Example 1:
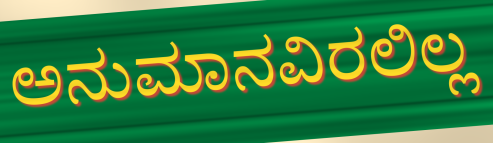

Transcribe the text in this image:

ಅನುಮಾನವಿರಲಿಲ್ಲ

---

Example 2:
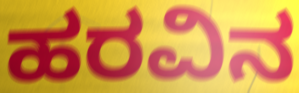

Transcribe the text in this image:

ಹರವಿನ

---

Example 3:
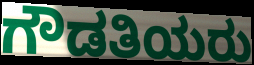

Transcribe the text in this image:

ಗೌಡತಿಯರು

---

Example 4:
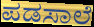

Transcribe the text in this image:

ಪಡಸಾಲೆ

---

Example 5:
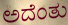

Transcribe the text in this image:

ಅದೆಂತು